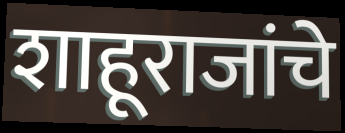
शाहूराजांचे